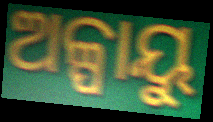
ଅଳ୍ପାୟୁ